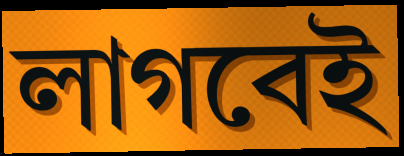
লাগবেই